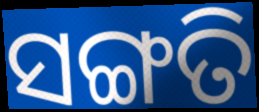
ସଙ୍ଗତି